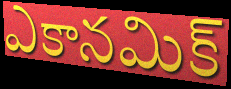
ఎకానమిక్